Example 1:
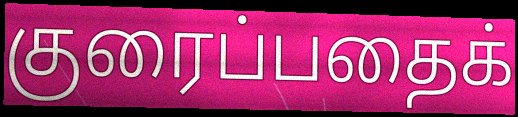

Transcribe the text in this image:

குரைப்பதைக்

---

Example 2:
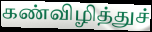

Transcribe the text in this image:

கண்விழித்துச்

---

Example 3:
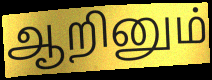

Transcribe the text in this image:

ஆறினும்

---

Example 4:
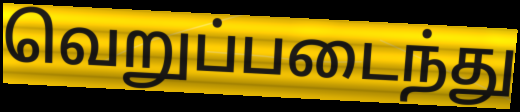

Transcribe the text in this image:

வெறுப்படைந்து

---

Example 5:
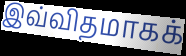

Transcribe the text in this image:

இவ்விதமாகக்